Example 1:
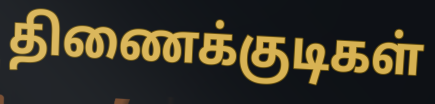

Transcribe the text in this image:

திணைக்குடிகள்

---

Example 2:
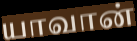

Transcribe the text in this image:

யாவான்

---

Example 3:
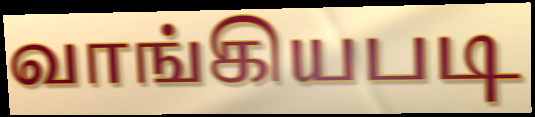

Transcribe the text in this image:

வாங்கியபடி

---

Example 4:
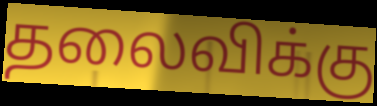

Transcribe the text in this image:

தலைவிக்கு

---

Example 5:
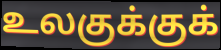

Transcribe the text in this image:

உலகுக்குக்